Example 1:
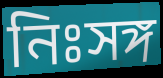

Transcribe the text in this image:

নিঃসঙ্গ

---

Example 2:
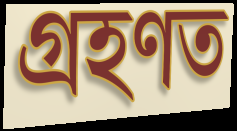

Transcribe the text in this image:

গ্ৰহণত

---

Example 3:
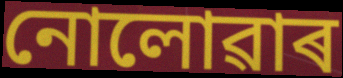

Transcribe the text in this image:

নোলোৱাৰ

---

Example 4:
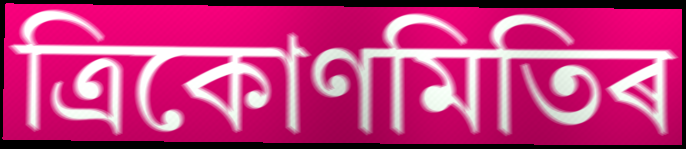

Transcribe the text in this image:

ত্ৰিকোণমিতিৰ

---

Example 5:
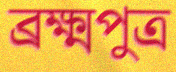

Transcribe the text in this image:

ব্ৰক্ষ্মপুত্ৰ